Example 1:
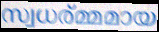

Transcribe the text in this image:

സ്വധര്മ്മമായ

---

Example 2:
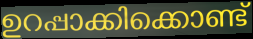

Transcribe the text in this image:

ഉറപ്പാക്കിക്കൊണ്ട്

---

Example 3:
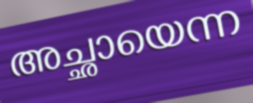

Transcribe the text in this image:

അച്ഛായെന്ന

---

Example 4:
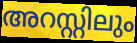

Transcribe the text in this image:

അറസ്റ്റിലും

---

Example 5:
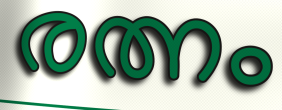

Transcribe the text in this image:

രത്നം